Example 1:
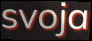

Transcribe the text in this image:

svoja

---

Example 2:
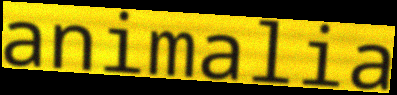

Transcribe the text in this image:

animalia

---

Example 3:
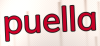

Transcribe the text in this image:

puella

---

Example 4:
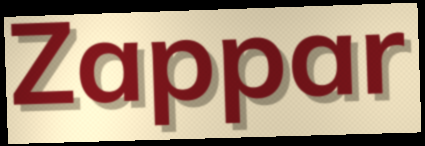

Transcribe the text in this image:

Zappar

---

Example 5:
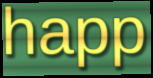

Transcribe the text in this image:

happ